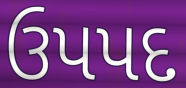
ઉપપદ